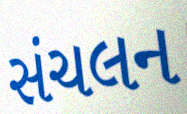
સંચલન